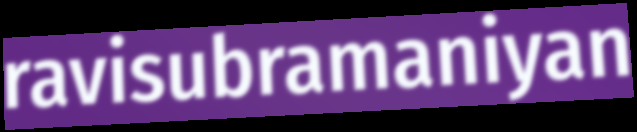
ravisubramaniyan